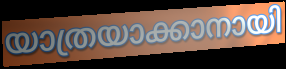
യാത്രയാക്കാനായി